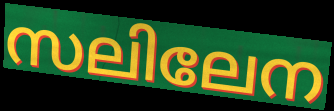
സലിലേന